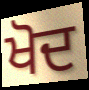
ਖੋਦ